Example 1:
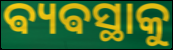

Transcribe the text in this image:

ଵ୍ୟଵସ୍ଥାକୁ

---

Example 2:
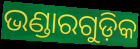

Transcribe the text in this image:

ଭଣ୍ଡାରଗୁଡ଼ିକ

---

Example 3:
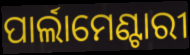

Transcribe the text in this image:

ପାର୍ଲାମେଣ୍ଟାରୀ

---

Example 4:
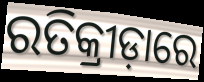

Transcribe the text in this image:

ରତିକ୍ରୀଡ଼ାରେ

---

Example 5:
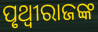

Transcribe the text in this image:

ପୃଥ୍ଵୀରାଜଙ୍କ